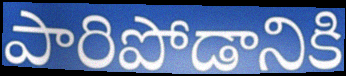
పారిపోడానికి